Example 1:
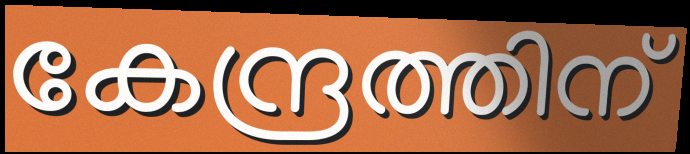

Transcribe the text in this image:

കേന്ദ്രത്തിന്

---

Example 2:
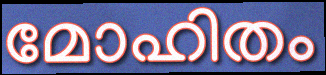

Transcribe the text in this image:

മോഹിതം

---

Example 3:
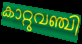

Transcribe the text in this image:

കാറ്റുവഞ്ചി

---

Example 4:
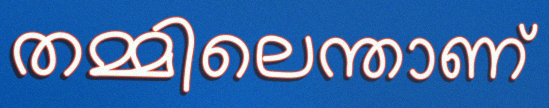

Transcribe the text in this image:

തമ്മിലെന്താണ്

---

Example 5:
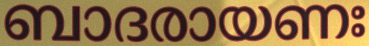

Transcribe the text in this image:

ബാദരായണഃ